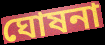
ঘোষনা